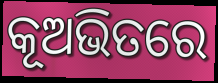
କୂଅଭିତରେ